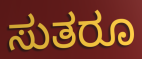
ಸುತರೂ